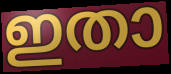
ഇതാ